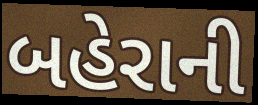
બહેરાની